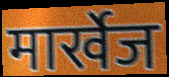
मार्खेज